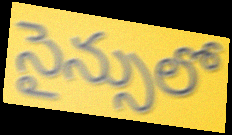
సైన్సులో